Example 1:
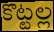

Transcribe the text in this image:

కొట్టల్ల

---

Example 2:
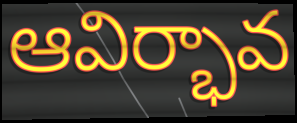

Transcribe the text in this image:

ఆవిర్భావ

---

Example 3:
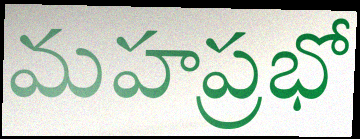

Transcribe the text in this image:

మహప్రభో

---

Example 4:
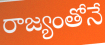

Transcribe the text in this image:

రాజ్యంతోనే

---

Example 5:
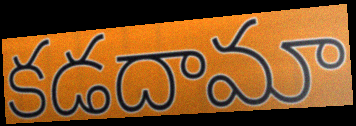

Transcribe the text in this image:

కడదామా